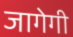
जागेगी